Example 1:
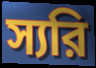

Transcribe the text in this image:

স্যরি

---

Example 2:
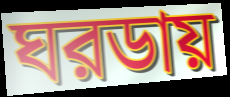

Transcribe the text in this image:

ঘরডায়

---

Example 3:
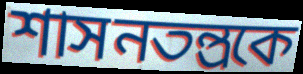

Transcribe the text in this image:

শাসনতন্ত্রকে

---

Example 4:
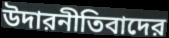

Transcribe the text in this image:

উদারনীতিবাদের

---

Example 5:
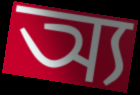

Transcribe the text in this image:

অ্য